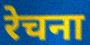
रेचना